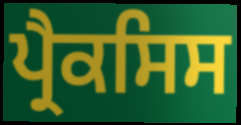
ਪ੍ਰੈਕਸਿਸ